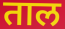
ताल